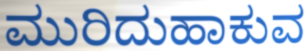
ಮುರಿದುಹಾಕುವ